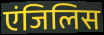
एंजिलिस